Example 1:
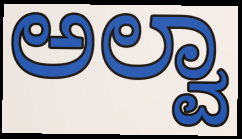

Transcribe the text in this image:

ಅಲ್ವಾ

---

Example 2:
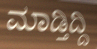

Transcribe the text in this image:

ಮಾಡ್ತಿದ್ದಿ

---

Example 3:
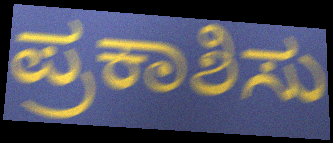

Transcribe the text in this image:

ಪ್ರಕಾಶಿಸು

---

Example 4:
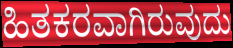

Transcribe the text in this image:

ಹಿತಕರವಾಗಿರುವುದು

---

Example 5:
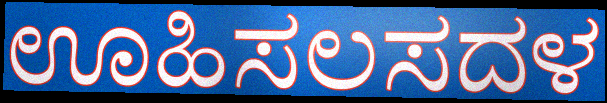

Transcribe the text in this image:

ಊಹಿಸಲಸದಳ